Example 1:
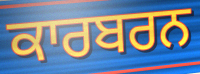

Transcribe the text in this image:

ਕਾਰਬਰਨ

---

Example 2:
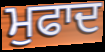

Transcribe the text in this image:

ਮੁਫਾਦ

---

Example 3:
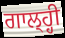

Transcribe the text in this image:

ਗਾਲ੍ਹ੍ਹੀ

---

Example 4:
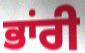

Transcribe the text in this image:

ਭਾਂਰੀ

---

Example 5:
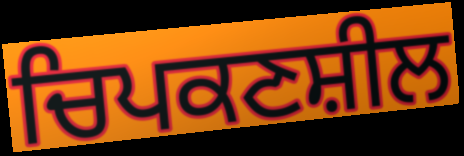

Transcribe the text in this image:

ਚਿਪਕਣਸ਼ੀਲ